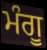
ਮੰਗੂ